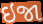
ઇજા